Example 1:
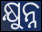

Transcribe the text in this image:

କ୍ଷୁନ୍ନ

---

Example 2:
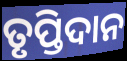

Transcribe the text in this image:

ତୃପ୍ତିଦାନ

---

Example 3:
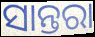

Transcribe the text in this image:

ସାନ୍ତରା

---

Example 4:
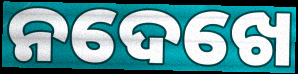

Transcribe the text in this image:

ନଦେଖେ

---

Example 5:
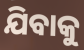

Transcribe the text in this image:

ଯିବାକୁ